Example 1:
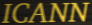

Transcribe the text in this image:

ICANN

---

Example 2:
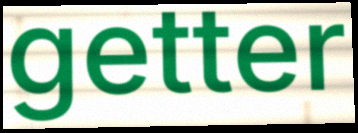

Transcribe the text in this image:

getter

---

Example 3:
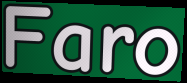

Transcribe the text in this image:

Faro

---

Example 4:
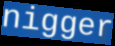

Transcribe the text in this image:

nigger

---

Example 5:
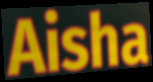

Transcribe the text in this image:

Aisha